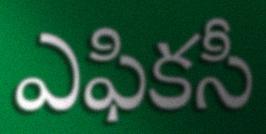
ఎఫికసీ